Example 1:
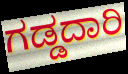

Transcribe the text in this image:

ಗಡ್ಡದಾರಿ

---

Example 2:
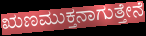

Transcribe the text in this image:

ಋಣಮುಕ್ತನಾಗುತ್ತೇನೆ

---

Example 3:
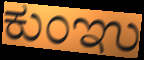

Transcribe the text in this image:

ಕುಂಞು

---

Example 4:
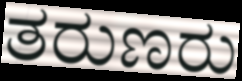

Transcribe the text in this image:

ತರುಣರು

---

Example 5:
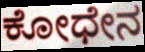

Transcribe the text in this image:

ಕೋಧೇನ